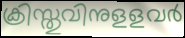
ക്രിസ്തുവിനുളളവർ